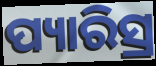
ପ୍ୟାରିସ୍ର